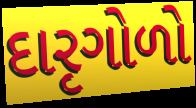
દારૃગોળો